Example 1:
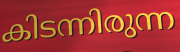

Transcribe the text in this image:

കിടന്നിരുന്ന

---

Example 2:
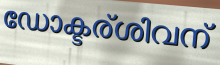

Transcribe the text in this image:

ഡോക്ടര്ശിവന്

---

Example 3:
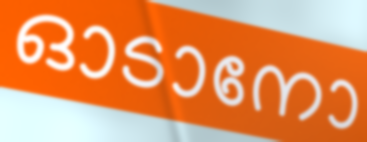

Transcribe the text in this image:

ഓടാനോ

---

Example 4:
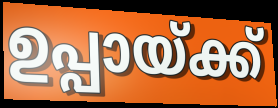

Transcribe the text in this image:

ഉപ്പായ്ക്ക്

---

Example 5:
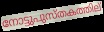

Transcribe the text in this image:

നോട്ടുപുസ്തകത്തില്